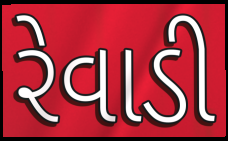
રેવાડી